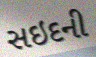
સઇદની